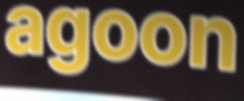
agoon